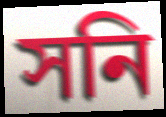
সনি